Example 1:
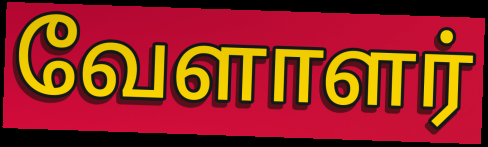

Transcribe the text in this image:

வேளாளர்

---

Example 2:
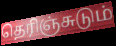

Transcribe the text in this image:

தெரிஞ்சுடும்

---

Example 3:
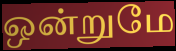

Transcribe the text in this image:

ஒன்றுமே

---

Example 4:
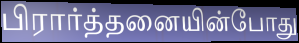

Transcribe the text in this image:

பிரார்த்தனையின்போது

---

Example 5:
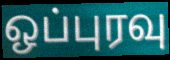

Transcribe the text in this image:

ஒப்புரவு